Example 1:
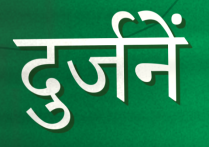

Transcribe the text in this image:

दुर्जनें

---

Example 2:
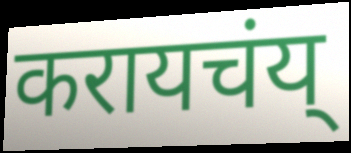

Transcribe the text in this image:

करायचंय्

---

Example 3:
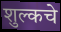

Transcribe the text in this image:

शुल्कचे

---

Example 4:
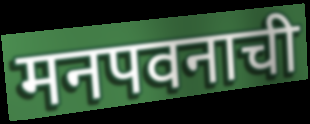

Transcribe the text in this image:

मनपवनाची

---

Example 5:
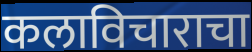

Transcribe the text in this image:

कलाविचाराचा